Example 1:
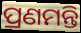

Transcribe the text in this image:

ପ୍ରଣମନ୍ତି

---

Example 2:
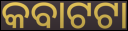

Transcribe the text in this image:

କବାଟଟା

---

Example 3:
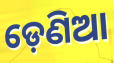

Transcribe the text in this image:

ଡ଼େଣିଆ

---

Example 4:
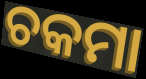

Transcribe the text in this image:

ଚକମା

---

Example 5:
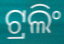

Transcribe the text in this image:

ଟ୍ରଲିଂ